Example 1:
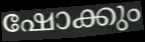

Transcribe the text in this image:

ഷോക്കും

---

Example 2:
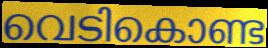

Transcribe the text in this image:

വെടികൊണ്ട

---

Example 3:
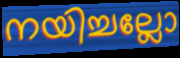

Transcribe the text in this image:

നയിച്ചല്ലോ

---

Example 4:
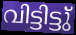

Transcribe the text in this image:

വിട്ടിട്ടു്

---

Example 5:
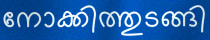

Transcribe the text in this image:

നോക്കിത്തുടങ്ങി